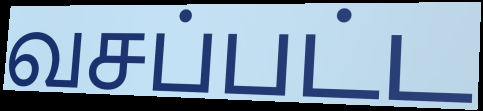
வசப்பட்ட